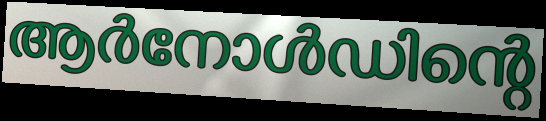
ആർനോൾഡിന്റെ